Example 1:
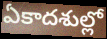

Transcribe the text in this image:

ఏకాదశుల్లో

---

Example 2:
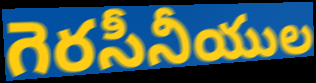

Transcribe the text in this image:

గెరసీనీయుల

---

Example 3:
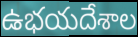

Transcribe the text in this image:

ఉభయదేశాల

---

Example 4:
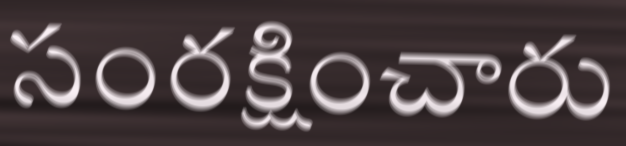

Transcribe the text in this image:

సంరక్షించారు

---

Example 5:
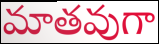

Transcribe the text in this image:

మాతవుగా